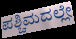
ಪಶ್ಚಿಮದಲ್ಲೇ